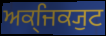
ਅਕ੍ਜਿਕ੍ਯੁਟ